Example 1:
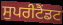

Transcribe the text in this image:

ਸੁਪਰੀਟੈਂਡਟ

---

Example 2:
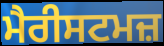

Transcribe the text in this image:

ਮੈਰੀਸਟਮਜ਼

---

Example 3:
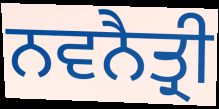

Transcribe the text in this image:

ਨਵਨੈਤ੍ਰੀ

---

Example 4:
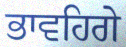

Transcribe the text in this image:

ਭਾਵਹਿਗੇ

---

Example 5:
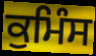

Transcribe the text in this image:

ਕੁਮਿੰਸ